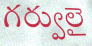
గర్వులై